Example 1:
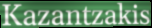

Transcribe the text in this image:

Kazantzakis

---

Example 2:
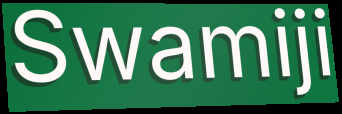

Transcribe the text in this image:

Swamiji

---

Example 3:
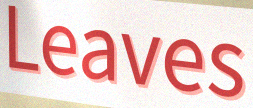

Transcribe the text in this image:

Leaves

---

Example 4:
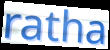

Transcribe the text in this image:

ratha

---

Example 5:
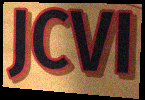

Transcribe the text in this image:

JCVI